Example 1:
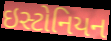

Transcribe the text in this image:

ઇસ્ટોનિયન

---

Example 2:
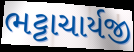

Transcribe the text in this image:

ભટ્ટાચાર્યજી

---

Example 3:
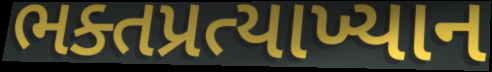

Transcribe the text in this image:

ભક્તપ્રત્યાખ્યાન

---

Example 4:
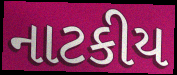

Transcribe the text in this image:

નાટકીય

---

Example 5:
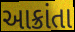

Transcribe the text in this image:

આક્રાંતા